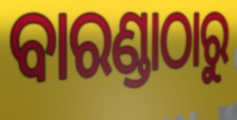
ବାରଣ୍ଡାଠାରୁ